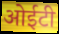
ओईटी